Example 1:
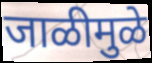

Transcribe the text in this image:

जाळीमुळे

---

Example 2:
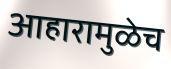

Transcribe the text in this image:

आहारामुळेच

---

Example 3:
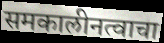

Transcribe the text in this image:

समकालीनत्वाचा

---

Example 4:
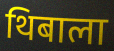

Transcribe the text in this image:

थिबाला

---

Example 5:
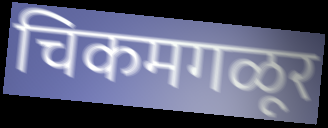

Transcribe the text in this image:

चिकमगळूर